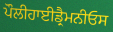
ਪੌਲੀਹਾਈਡ੍ਰੈਮਨੀਓਸ